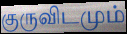
குருவிடமும்